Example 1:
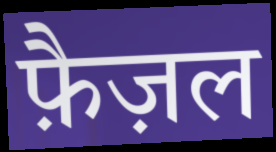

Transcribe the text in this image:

फ़ैज़ल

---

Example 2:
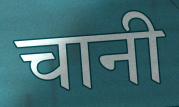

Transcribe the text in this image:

चानी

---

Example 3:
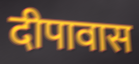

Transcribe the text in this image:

दीपावास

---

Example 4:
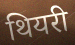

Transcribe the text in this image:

थियरी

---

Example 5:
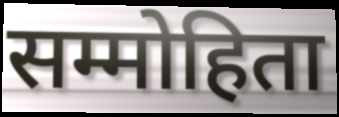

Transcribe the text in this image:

सम्मोहिता